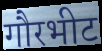
गौरभीट